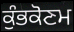
ਕੁੰਭਕੋਣਮ